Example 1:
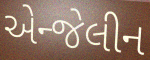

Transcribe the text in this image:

એન્જેલીન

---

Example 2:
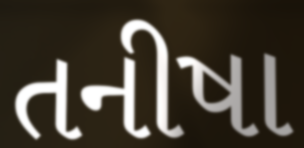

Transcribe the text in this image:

તનીષા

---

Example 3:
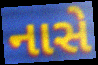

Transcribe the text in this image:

નાસે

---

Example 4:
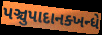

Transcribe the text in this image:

પઞ્ચુપાદાનક્ખન્ધે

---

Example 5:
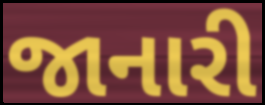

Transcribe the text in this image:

જાનારી